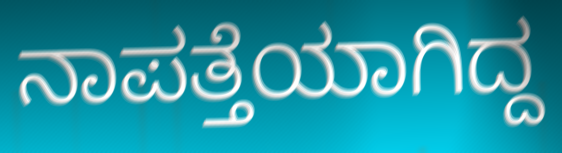
ನಾಪತ್ತೆಯಾಗಿದ್ದ